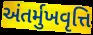
અંતર્મુખવૃત્તિ